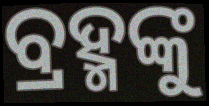
ବ୍ରହ୍ମଙ୍କୁ